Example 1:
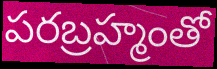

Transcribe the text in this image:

పరబ్రహ్మంతో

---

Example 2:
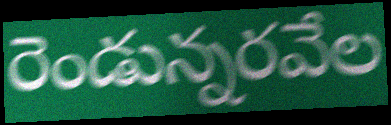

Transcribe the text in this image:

రెండున్నరవేల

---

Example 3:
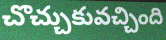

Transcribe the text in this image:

చొచ్చుకువచ్చింది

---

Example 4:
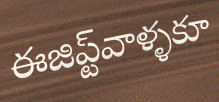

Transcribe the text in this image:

ఈజిప్ట్‌వాళ్ళకూ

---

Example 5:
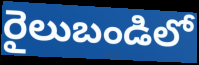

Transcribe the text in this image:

రైలుబండిలో